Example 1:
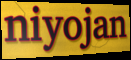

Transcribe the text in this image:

niyojan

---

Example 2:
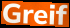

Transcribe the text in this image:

Greif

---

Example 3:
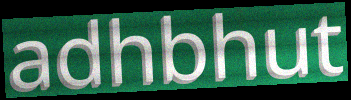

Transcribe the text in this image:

adhbhut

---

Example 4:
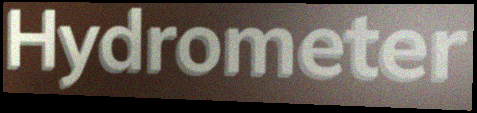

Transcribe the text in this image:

Hydrometer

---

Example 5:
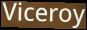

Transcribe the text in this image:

Viceroy